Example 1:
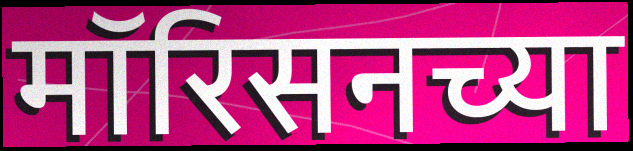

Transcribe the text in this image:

मॉरिसनच्या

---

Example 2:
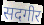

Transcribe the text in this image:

सदगीर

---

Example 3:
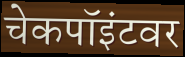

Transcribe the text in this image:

चेकपॉइंटवर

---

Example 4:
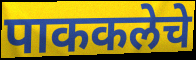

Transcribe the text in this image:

पाककलेचे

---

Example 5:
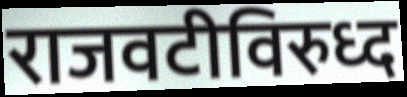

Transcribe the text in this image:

राजवटीविरुध्द